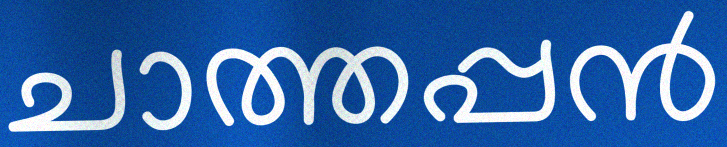
ചാത്തപ്പൻ